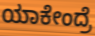
ಯಾಕೇಂದ್ರೆ